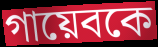
গায়েবকে